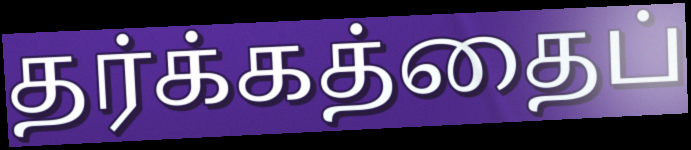
தர்க்கத்தைப்